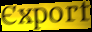
Export